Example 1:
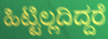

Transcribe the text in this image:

ಹಿಟ್ಟಿಲ್ಲದಿದ್ದರೆ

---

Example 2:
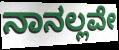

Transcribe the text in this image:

ನಾನಲ್ಲವೇ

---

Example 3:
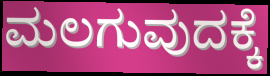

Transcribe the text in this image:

ಮಲಗುವುದಕ್ಕೆ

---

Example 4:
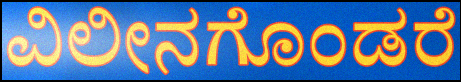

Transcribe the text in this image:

ವಿಲೀನಗೊಂಡರೆ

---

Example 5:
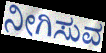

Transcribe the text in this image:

ನೀಗಿಸುವ